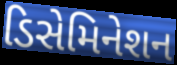
ડિસેમિનેશન